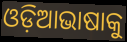
ଓଡ଼ିଆଭାଷାକୁ